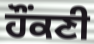
ਹੌਂਕਣੀ